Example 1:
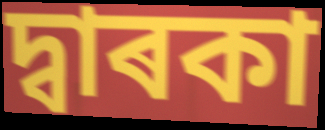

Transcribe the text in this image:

দ্বাৰকা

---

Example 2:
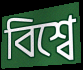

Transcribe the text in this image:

বিশ্বে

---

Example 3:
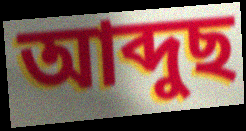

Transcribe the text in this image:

আব্দুছ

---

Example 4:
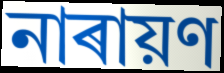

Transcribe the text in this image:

নাৰায়ণ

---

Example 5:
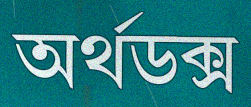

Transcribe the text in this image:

অৰ্থডক্স